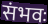
संभवः